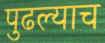
पुढल्याच